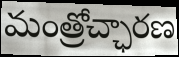
మంత్రోచ్ఛారణ